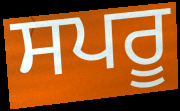
ਸਪਰੂ